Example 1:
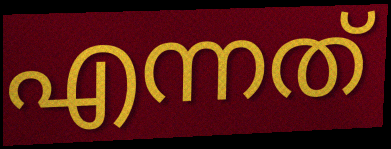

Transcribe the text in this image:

എന്നത്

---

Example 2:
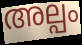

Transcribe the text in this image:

അല്പം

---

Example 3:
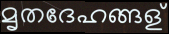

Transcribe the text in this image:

മൃതദേഹങ്ങള്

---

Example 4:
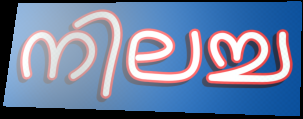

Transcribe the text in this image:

നിലച്ച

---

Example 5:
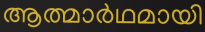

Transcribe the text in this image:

ആത്മാർഥമായി